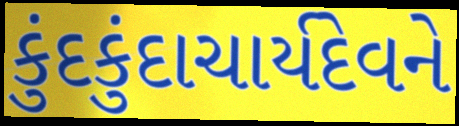
કુંદકુંદાચાર્યદેવને